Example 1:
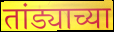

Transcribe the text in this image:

तांड्याच्या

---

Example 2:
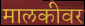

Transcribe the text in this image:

मालकीवर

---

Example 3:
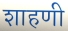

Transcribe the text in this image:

शाहणी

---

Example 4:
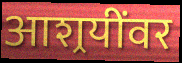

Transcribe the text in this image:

आश्रयींवर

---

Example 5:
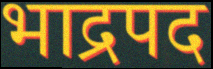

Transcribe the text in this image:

भाद्रपद